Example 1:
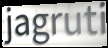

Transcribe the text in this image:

jagruti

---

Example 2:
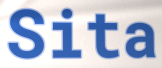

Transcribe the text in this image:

Sita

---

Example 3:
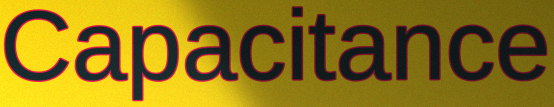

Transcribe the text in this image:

Capacitance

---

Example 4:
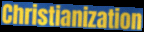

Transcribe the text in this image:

Christianization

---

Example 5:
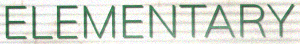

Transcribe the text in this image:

ELEMENTARY